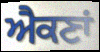
ਐਕਣਾਂ